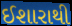
ઈશારાથી